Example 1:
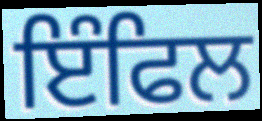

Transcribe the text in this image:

ਇੰਫਿਲ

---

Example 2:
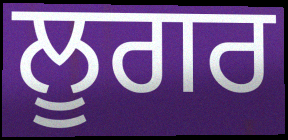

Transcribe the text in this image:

ਲੂਗਰ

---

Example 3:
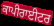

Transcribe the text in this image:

ਕਾਪੀਰਾਈਟਰ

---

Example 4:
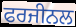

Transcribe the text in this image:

ਫਰਜੀਨਲ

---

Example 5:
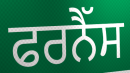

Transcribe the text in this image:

ਫਰਨੈੱਸ